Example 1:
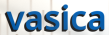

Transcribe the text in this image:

vasica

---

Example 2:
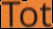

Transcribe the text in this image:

Tot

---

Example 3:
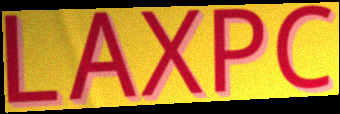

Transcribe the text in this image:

LAXPC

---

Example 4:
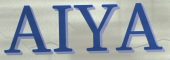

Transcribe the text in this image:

AIYA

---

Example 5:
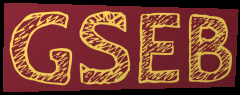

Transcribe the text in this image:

GSEB